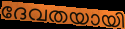
ദേവതയായി